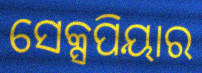
ସେକ୍ସପିୟାର